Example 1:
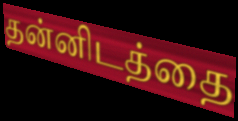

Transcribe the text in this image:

தன்னிடத்தை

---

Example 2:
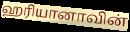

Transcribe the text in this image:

ஹரியானாவின்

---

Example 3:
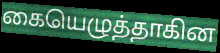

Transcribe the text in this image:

கையெழுத்தாகின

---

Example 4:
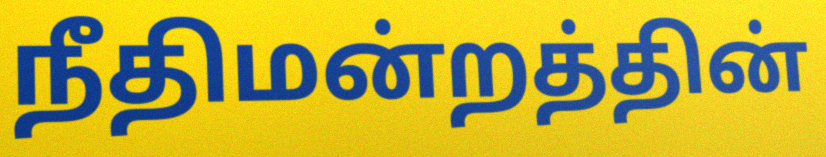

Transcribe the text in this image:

நீதிமன்றத்தின்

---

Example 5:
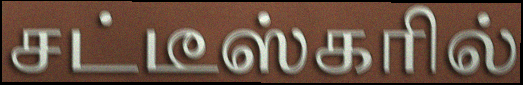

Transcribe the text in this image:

சட்டீஸ்கரில்